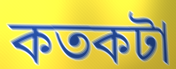
কতকটা